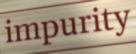
impurity